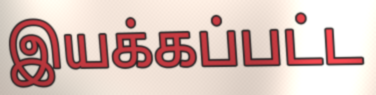
இயக்கப்பட்ட